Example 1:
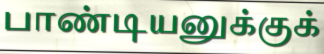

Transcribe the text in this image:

பாண்டியனுக்குக்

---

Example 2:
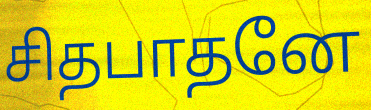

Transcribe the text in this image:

சிதபாதனே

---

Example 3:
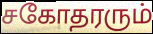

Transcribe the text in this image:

சகோதரரும்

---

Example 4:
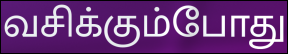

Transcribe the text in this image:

வசிக்கும்போது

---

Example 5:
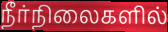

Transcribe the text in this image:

நீர்நிலைகளில்